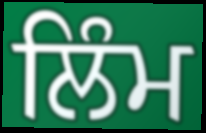
ਲਿੰਮ